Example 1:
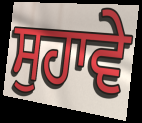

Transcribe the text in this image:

ਸੁਹਾਵੇ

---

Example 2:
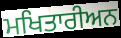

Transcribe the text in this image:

ਮਖਿਤਾਰੀਅਨ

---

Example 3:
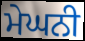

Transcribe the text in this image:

ਮੇਘਨੀ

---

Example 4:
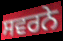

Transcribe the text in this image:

ਸਵਰਨੇ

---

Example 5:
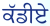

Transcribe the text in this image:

ਕੱਡੀਏ